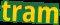
tram